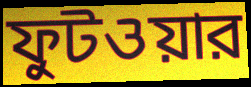
ফুটওয়ার